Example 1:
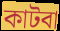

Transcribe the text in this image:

কাটবা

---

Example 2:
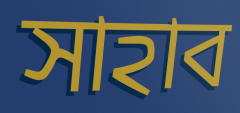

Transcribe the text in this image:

সাহাব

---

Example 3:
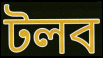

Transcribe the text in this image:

টলব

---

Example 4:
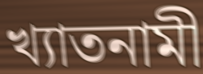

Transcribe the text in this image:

খ্যাতনামী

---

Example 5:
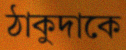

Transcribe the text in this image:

ঠাকুদাকে